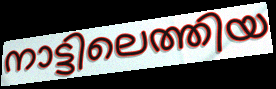
നാട്ടിലെത്തിയ